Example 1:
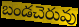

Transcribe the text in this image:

బండచెరువు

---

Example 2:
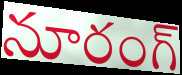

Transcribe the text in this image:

నూరంగ్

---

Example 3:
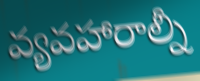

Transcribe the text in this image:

వ్యవహారాల్నీ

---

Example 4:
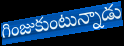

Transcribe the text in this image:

గింజుకుంటున్నాడు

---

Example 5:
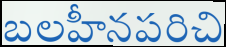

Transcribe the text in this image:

బలహీనపరిచి